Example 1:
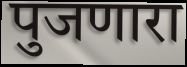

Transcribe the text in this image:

पुजणारा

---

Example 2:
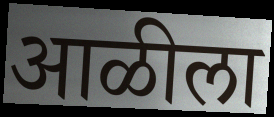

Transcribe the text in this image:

आळीला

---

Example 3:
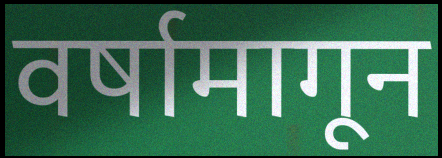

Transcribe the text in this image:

वर्षामागून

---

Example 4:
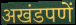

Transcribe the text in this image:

अखंडपणें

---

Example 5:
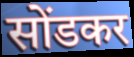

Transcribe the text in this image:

सोंडकर